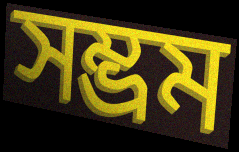
সম্ভ্রম